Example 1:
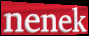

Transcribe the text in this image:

nenek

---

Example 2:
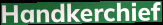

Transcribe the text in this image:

Handkerchief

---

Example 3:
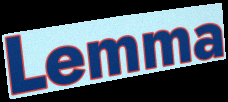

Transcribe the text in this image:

Lemma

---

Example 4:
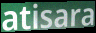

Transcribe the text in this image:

atisara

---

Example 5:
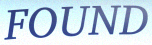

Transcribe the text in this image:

FOUND